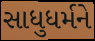
સાધુધર્મને